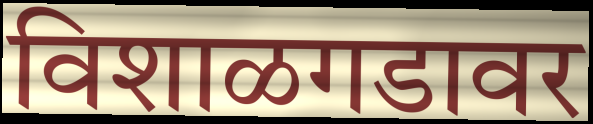
विशाळगडावर